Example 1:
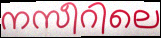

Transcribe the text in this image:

നസീറിലെ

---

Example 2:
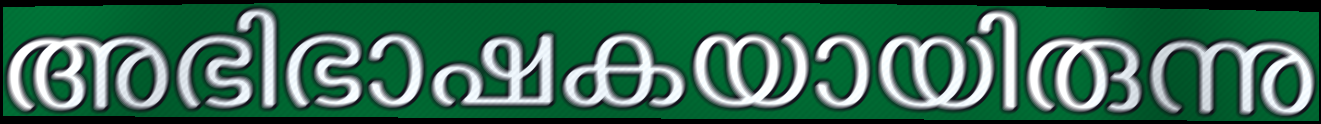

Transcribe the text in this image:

അഭിഭാഷകയായിരുന്നു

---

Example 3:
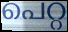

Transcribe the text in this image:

പെറ്റ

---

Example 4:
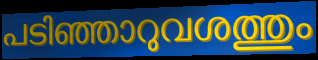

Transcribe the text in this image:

പടിഞ്ഞാറുവശത്തും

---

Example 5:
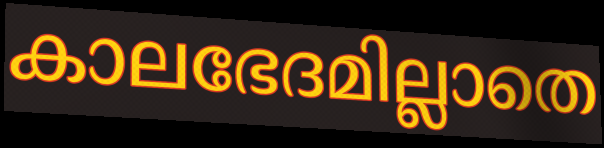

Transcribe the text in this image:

കാലഭേദമില്ലാതെ